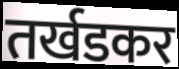
तर्खडकर